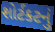
શોર્ટકટનું